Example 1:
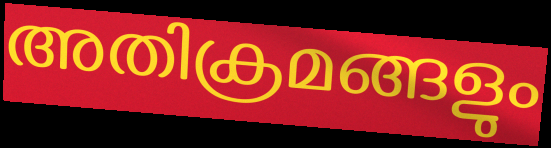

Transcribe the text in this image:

അതിക്രമങ്ങളും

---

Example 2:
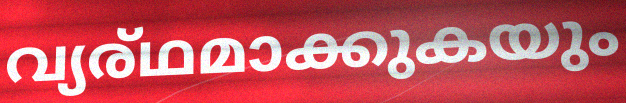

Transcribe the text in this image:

വ്യര്ഥമാക്കുകയും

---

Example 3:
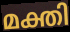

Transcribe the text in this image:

മക്തി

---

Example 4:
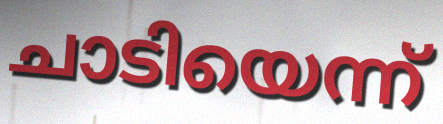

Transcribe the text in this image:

ചാടിയെന്ന്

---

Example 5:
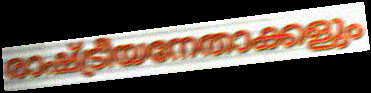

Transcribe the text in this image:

രാഷ്ട്രീയനേതാക്കളും